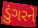
ડુંગરને